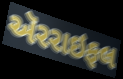
ઍરરાઇફલ